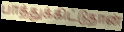
பாத்துக்கிட்டுதான்